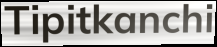
Tipitkanchi